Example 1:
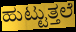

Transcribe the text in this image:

ಹುಟ್ಟುತ್ತಲೆ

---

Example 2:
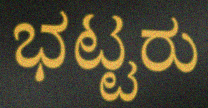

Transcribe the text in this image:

ಭಟ್ಟರು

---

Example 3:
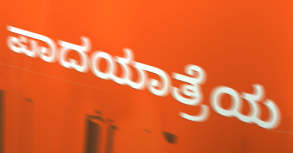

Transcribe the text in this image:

ಪಾದಯಾತ್ರೆಯ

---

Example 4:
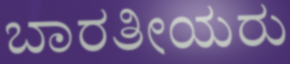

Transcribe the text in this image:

ಬಾರತೀಯರು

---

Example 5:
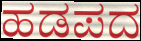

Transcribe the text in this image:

ಹಡಪದ